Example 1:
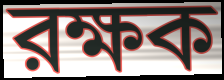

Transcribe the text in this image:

রক্ষক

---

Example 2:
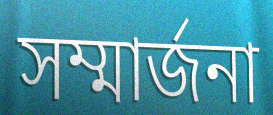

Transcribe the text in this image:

সম্মার্জনা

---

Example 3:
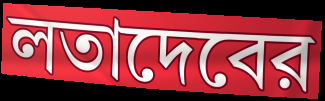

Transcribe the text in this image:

লতাদেবের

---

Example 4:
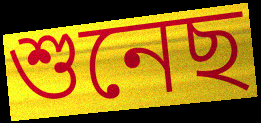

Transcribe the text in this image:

শুনেছ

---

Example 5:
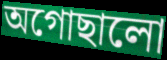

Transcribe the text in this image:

অগোছালো